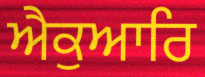
ਐਕੁਆਰਿ